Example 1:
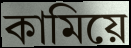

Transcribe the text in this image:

কামিয়ে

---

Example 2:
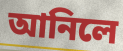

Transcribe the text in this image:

আনিলে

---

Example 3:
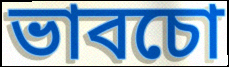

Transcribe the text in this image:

ভাবচো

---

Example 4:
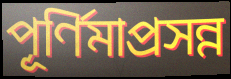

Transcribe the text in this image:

পূর্ণিমাপ্রসন্ন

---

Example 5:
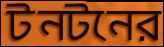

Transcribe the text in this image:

টনটনের